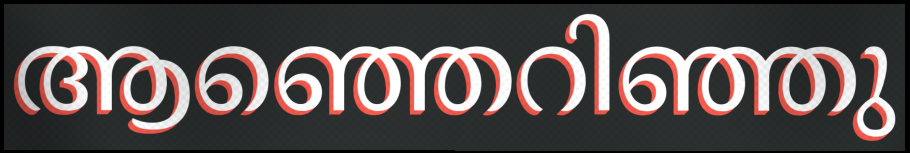
ആഞ്ഞെറിഞ്ഞു